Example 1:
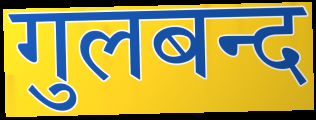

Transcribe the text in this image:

गुलबन्द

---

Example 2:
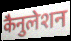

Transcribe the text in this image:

कैनुलेशन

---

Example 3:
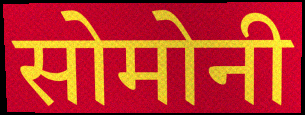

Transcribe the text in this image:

सोमोनी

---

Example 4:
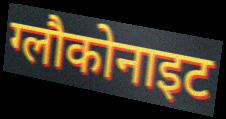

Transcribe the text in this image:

ग्लौकोनाइट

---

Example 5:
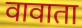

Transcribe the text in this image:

वावाता